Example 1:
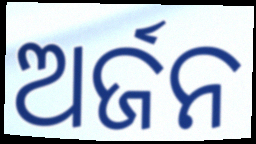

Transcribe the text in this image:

ଅର୍ଜନ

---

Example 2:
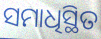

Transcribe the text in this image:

ସମାଧିସ୍ଥିତ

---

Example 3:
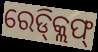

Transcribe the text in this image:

ରେଡ୍କ୍ଲିଫ୍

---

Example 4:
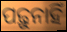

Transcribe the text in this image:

ପଢ଼ୁନାହିଁ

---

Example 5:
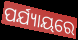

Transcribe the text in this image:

ପର୍ଯ୍ୟାୟରେ